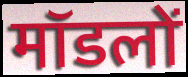
मॉडलों